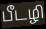
பீடழி